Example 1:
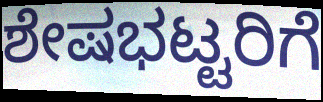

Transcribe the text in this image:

ಶೇಷಭಟ್ಟರಿಗೆ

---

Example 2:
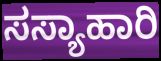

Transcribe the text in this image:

ಸಸ್ಯಾಹಾರಿ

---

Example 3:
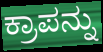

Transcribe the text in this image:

ಕ್ರಾಪನ್ನು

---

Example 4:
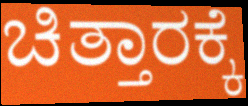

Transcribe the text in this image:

ಚಿತ್ತಾರಕ್ಕೆ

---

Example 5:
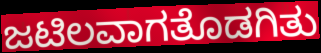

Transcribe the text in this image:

ಜಟಿಲವಾಗತೊಡಗಿತು